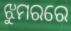
ଝୁମରରେ